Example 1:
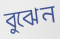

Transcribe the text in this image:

বুঝেন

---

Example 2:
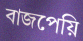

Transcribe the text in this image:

বাজপেয়ি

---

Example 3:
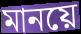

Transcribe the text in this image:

মানয়ে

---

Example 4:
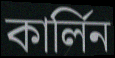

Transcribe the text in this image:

কার্লিন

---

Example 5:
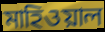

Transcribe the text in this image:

মাহিওয়াল